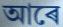
আৰে